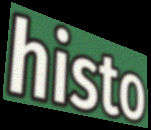
histo